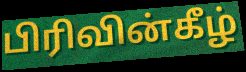
பிரிவின்கீழ்